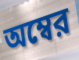
অম্বের